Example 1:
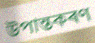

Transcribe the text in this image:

উপান্তকৰণ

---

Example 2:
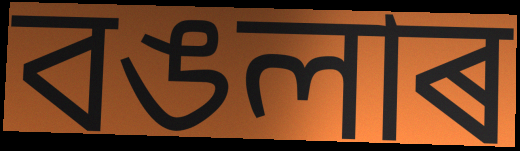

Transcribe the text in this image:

বঙলাৰ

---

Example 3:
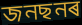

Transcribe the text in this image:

জনছনৰ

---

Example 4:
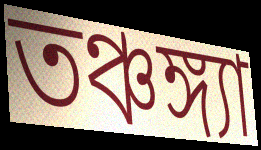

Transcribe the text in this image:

তঞ্চঙ্গ্যা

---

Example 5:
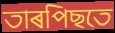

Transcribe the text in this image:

তাৰপিছতে